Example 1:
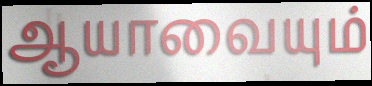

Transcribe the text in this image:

ஆயாவையும்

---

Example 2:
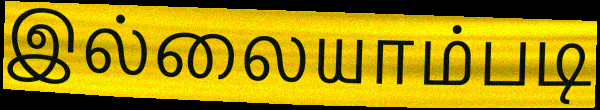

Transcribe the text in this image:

இல்லையாம்படி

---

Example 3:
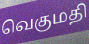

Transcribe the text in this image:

வெகுமதி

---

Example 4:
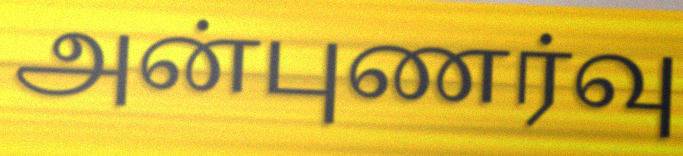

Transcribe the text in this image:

அன்புணர்வு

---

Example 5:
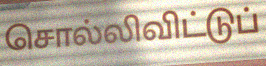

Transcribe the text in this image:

சொல்லிவிட்டுப்